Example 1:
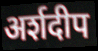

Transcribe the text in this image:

अर्शदीप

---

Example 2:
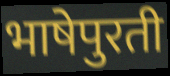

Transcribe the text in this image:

भाषेपुरती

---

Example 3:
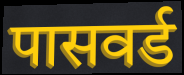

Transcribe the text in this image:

पासवर्ड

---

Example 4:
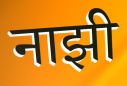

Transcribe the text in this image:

नाझी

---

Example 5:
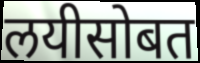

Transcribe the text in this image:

लयीसोबत